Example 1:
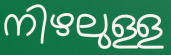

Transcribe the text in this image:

നിഴലുള്ള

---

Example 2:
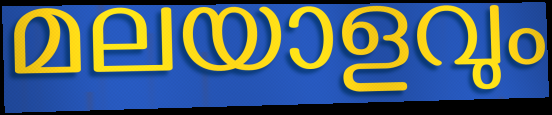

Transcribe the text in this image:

മലയാളവും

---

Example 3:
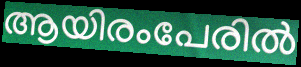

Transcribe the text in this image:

ആയിരംപേരിൽ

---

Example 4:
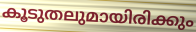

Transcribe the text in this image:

കൂടുതലുമായിരിക്കും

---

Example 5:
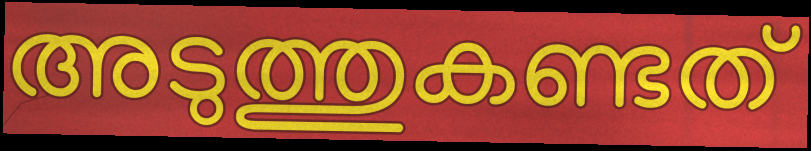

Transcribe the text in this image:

അടുത്തുകണ്ടത്